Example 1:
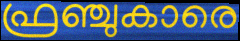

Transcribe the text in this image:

ഫ്രഞ്ചുകാരെ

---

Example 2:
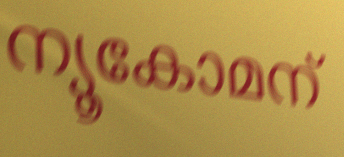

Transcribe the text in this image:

ന്യൂകോമന്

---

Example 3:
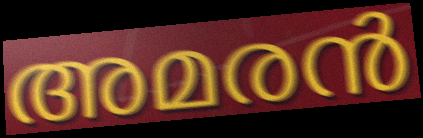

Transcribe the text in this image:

അമരൻ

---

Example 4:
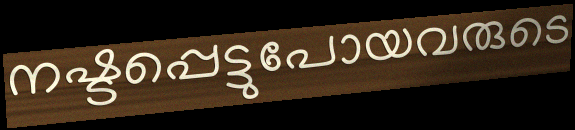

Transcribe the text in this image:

നഷ്ടപ്പെട്ടുപോയവരുടെ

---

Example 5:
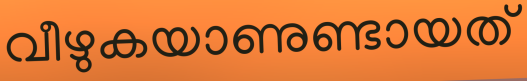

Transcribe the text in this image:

വീഴുകയാണുണ്ടായത്